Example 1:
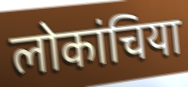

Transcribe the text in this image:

लोकांचिया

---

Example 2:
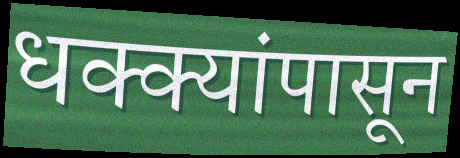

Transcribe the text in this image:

धक्क्यांपासून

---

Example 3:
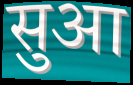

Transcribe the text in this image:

सुआ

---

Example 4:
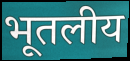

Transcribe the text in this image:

भूतलीय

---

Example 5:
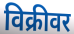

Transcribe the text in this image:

विक्रीवर